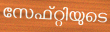
സേഫ്റ്റിയുടെ